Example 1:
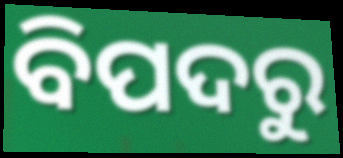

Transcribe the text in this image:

ବିପଦରୁ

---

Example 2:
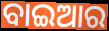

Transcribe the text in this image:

ବାଇଆର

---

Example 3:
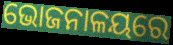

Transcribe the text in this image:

ଭୋଜନାଳୟରେ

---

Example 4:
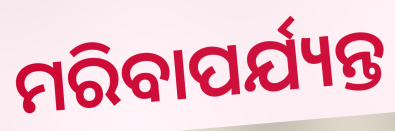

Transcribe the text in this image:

ମରିବାପର୍ଯ୍ୟନ୍ତ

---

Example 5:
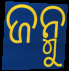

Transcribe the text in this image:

ଜନ୍ମୁ